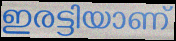
ഇരട്ടിയാണ്